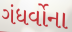
ગંધર્વોના